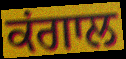
ਕਂਗਾਲ